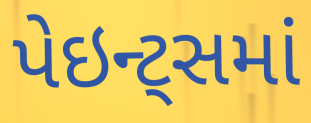
પેઇન્ટ્સમાં